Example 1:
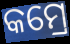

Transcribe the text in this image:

କମ୍ରେ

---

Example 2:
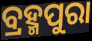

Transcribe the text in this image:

ବ୍ରହ୍ମପୁରା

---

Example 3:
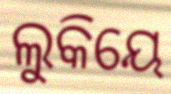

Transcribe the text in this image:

ଲୁକିୟେ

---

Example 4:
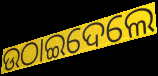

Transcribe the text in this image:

ଉଠାଇଦେଲେ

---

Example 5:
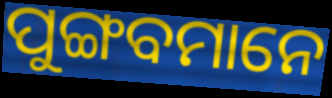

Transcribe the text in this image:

ପୁଙ୍ଗବମାନେ